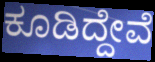
ಕೂಡಿದ್ದೇವೆ